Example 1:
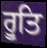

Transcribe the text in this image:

ਰੂਤਿ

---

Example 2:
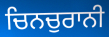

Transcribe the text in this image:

ਚਿਨਚੁਰਾਨੀ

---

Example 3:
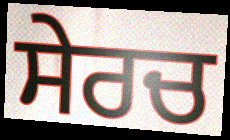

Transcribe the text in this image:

ਸੇਰਚ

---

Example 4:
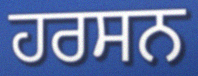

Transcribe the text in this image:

ਹਰਸਨ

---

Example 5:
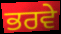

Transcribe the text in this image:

ਭਰਵੇ